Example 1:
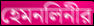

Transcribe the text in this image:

হেমনলিনীর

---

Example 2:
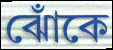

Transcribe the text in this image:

ঝোঁকে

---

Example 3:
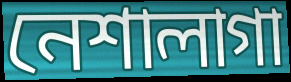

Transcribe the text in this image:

নেশালাগা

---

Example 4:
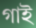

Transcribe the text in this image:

গাই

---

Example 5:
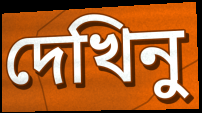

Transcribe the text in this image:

দেখিনু